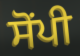
ਸੋੰਪੀ